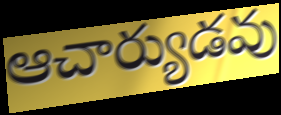
ఆచార్యుడవు